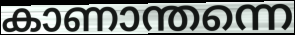
കാണാന്തന്നെ